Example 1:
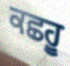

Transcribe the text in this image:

ਕਛਹੂ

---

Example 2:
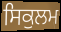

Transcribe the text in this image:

ਸਿਕੁਲਮ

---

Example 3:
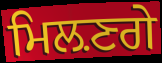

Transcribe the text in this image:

ਮਿਲ਼ਣਗੇ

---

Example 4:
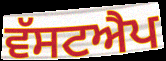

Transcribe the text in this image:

ਵੱਸਟਐਪ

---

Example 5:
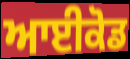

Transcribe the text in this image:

ਆਈਕੋਡ